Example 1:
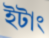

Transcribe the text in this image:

ইটাং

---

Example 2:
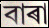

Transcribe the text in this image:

বাৰা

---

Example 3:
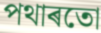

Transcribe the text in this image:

পথাৰতো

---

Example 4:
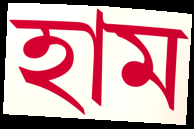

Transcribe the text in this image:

হাম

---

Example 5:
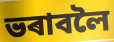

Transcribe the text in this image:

ভৰাবলৈ